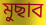
মুছাব